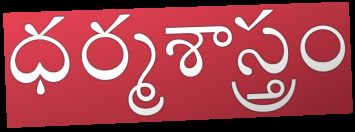
ధర్మశాస్త్రం